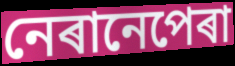
নেৰানেপেৰা